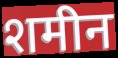
शमीन